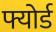
फ्योर्ड